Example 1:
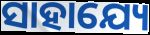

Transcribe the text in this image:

ସାହାଯ୍ୟେ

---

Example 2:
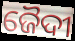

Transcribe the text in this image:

ଜୈଦୀ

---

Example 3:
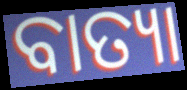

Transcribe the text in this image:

ବାତ୍ଯା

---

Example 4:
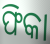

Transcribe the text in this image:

ଫିକା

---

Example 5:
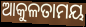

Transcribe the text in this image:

ଆକୁଳତାମୟ